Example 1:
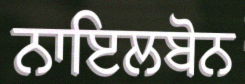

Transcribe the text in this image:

ਨਾਇਲਬੋਨ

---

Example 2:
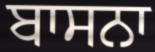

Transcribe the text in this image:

ਬਾਸਨਾ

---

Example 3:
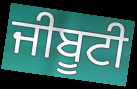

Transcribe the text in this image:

ਜੀਬੂਟੀ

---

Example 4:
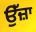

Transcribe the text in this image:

ਉੱਜ਼ਾ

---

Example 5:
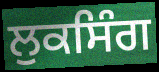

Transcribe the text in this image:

ਲੁਕਸਿੰਗ